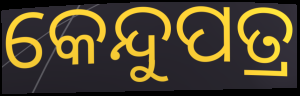
କେନ୍ଦୁପତ୍ର